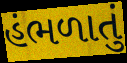
હંભળાતું